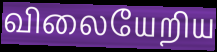
விலையேறிய